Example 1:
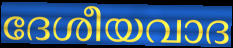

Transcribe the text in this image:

ദേശീയവാദ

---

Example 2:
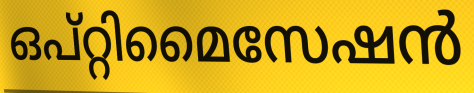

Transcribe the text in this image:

ഒപ്റ്റിമൈസേഷൻ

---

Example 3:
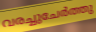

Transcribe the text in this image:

വരച്ചുചേർത്തു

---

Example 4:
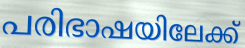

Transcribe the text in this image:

പരിഭാഷയിലേക്ക്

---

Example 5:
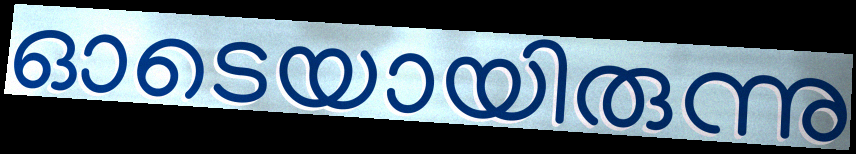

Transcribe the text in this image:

ഓടെയായിരുന്നു